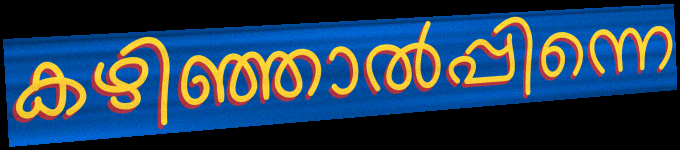
കഴിഞ്ഞാൽപ്പിന്നെ